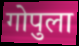
गोपुला